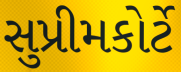
સુપ્રીમકોર્ટે